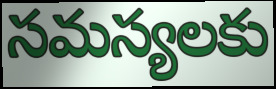
సమస్యలకు